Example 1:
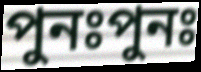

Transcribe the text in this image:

পুনঃপুনঃ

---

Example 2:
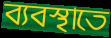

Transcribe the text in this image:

ব্যবস্থাতে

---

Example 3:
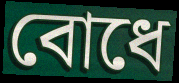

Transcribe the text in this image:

বোধে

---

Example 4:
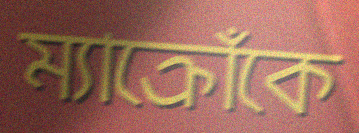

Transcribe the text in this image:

ম্যাক্রোঁকে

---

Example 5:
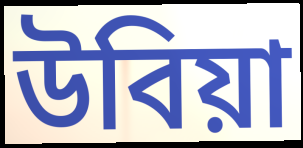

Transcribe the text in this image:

উবিয়া